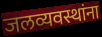
जलव्यवस्थांना